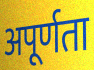
अपूर्णता